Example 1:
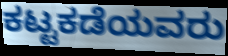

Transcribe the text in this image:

ಕಟ್ಟಕಡೆಯವರು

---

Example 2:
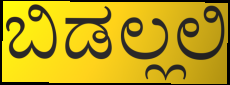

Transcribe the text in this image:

ಬಿಡಲ್ಲಲಿ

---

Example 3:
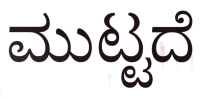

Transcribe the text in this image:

ಮುಟ್ಟದೆ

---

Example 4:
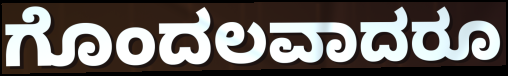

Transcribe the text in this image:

ಗೊಂದಲವಾದರೂ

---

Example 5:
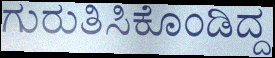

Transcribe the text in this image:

ಗುರುತಿಸಿಕೊಂಡಿದ್ದ